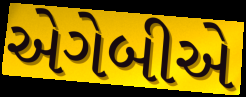
એગેબીએ